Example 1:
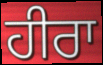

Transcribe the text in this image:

ਹੀਰਾ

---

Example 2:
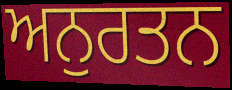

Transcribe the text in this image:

ਅਨੁਰਤਨ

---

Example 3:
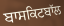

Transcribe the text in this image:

ਬਾਸਕਿਟਬਾੱਲ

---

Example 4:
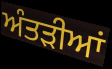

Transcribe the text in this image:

ਅੰਤੜੀਆਂ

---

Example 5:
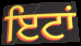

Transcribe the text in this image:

ਇਟਾਂ